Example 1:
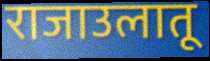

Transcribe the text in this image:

राजाउलातू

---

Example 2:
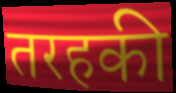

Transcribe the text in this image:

तरहकी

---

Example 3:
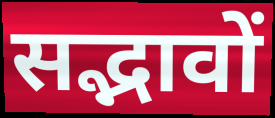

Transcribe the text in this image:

सद्भावों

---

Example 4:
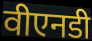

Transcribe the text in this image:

वीएनडी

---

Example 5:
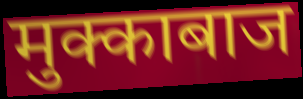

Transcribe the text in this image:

मुक्काबाज